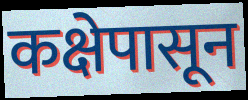
कक्षेपासून